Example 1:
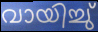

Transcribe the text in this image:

വായിച്ചു്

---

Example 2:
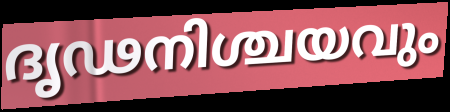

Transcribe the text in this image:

ദൃഢനിശ്ചയവും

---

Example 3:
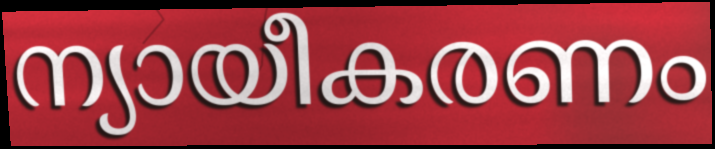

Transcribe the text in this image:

ന്യായീകരണം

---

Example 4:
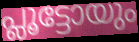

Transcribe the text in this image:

പ്ലൂട്ടോയും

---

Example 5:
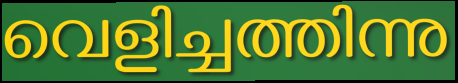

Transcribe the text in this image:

വെളിച്ചത്തിന്നു